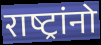
राष्ट्रांनो